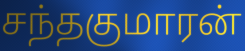
சந்தகுமாரன்